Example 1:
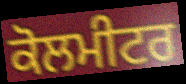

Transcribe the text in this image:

ਕੋਲਮੀਟਰ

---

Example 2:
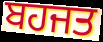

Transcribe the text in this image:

ਬਹਜਤ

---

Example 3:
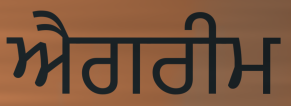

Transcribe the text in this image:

ਐਗਰੀਮ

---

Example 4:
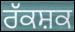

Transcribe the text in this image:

ਰੱਕਸ਼ਕ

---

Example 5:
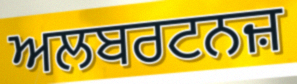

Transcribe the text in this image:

ਅਲਬਰਟਨਜ਼